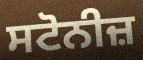
ਸਟੋਨੀਜ਼